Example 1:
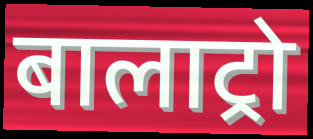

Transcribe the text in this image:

बालाट्रो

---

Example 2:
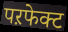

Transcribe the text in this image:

पऱफेक्ट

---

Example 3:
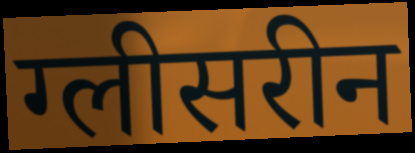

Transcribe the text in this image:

ग्लीसरीन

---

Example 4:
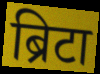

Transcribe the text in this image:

ब्रिटा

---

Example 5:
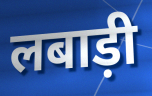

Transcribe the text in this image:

लबाड़ी